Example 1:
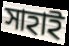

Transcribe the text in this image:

সাহাই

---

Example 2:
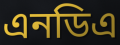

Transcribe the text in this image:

এনডিএ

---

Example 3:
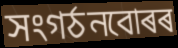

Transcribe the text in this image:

সংগঠনবোৰৰ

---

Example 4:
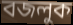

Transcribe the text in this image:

বজলুক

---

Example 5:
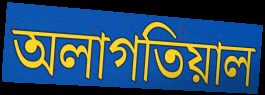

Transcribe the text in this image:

অলাগতিয়াল